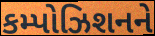
કમ્પોઝિશનને